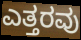
ಎತ್ತರವು